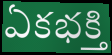
ఏకభక్తి